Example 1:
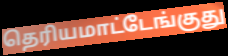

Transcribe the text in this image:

தெரியமாட்டேங்குது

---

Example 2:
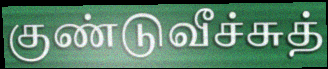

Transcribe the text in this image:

குண்டுவீச்சுத்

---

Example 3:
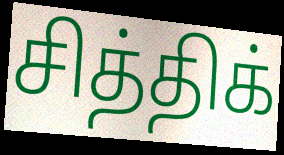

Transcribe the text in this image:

சித்திக்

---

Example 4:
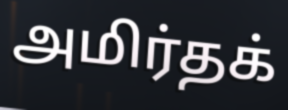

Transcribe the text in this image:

அமிர்தக்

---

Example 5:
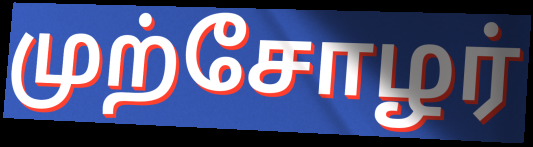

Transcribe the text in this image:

முற்சோழர்